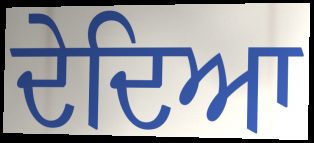
ਦੇਦਿਆ